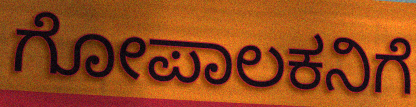
ಗೋಪಾಲಕನಿಗೆ